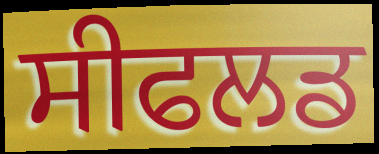
ਸੀਫਲਡ